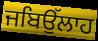
ਜਬਿਉੱਲਾਹ